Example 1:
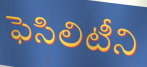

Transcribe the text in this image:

ఫెసిలిటీని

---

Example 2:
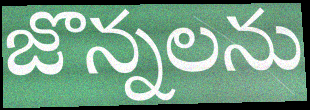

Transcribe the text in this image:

జొన్నలను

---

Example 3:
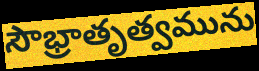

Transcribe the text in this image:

సౌభ్రాతృత్వమును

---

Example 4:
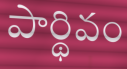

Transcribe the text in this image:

పార్థివం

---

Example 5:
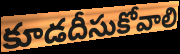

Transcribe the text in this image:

కూడదీసుకోవాలి